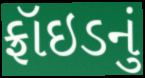
ફ્રૉઇડનું